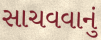
સાચવવાનું